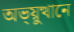
অভ্য়ুত্থানে